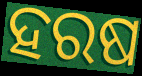
ହରଷ